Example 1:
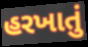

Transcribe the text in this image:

હરખાતું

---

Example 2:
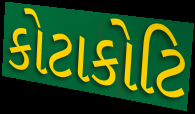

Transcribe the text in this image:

કોટાકોટિ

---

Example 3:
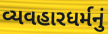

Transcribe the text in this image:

વ્યવહારધર્મનું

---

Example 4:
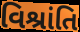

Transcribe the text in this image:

વિશ્રાંતિ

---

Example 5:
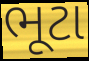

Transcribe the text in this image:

ભૂટા